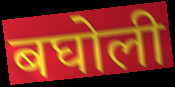
बघोली